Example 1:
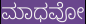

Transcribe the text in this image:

ಮಾಧವೋ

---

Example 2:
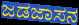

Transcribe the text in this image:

ಜಡಜಾಸನ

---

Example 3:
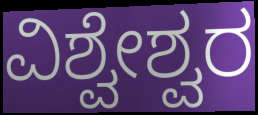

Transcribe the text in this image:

ವಿಶ್ವೇಶ್ವರ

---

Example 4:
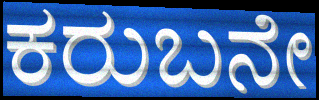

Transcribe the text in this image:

ಕರುಬನೇ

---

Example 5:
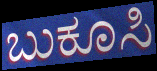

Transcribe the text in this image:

ಬುಕೂಸಿ